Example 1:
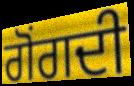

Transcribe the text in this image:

ਗੋਂਗਦੀ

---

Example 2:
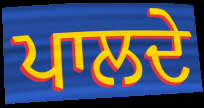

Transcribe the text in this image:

ਪਾਲਦੇ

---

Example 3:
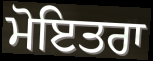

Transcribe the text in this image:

ਮੋਇਤਰਾ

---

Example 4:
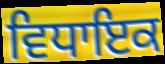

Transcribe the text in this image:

ਵਿਧਾਇਕ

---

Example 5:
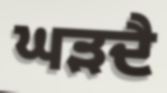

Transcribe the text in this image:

ਘੜਦੈ